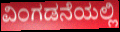
ವಿಂಗಡನೆಯಲ್ಲಿ